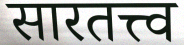
सारतत्त्व